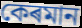
কেৰমান